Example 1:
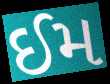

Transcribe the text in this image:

ઈમ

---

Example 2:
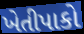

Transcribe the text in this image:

ખેતીપાકો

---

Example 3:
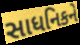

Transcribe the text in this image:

સાધનિકને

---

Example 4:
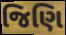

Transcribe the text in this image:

જિણિ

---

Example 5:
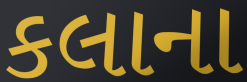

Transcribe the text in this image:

કલાના